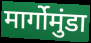
मार्गोमुंडा